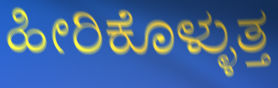
ಹೀರಿಕೊಳ್ಳುತ್ತ